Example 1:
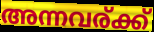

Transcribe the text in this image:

അന്നവര്ക്ക്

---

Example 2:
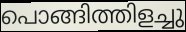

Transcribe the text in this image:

പൊങ്ങിത്തിളച്ചു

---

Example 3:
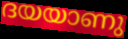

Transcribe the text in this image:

ദയയാണു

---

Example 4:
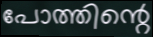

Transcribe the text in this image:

പോത്തിന്റെ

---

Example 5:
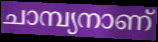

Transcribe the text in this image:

ചാമ്പ്യനാണ്